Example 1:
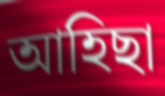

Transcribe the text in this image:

আহিছা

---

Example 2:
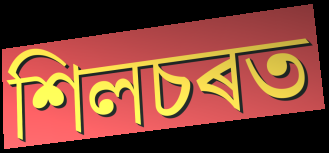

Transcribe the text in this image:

শিলচৰত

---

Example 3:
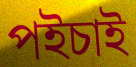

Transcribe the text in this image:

পইচাই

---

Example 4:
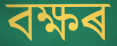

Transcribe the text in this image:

বক্ষৰ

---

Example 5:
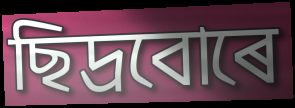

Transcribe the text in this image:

ছিদ্ৰবোৰে